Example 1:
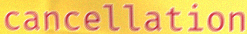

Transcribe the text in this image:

cancellation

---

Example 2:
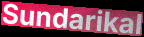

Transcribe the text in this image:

Sundarikal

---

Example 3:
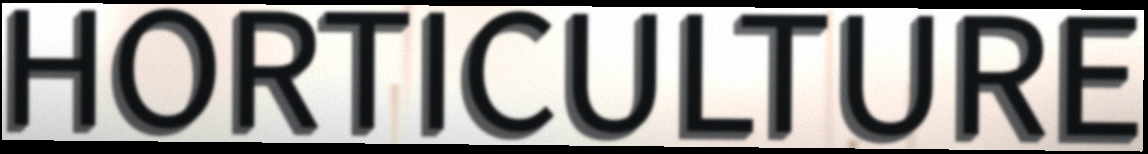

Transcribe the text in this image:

HORTICULTURE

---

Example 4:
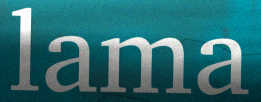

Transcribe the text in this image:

lama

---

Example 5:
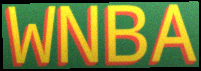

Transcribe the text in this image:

WNBA